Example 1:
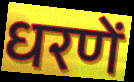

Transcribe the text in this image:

धरणें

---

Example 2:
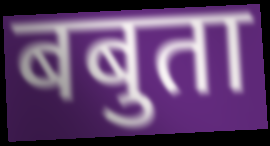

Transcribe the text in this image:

बबुता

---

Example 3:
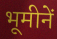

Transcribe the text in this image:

भूमीनें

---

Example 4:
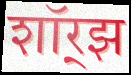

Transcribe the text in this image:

शॉर्झ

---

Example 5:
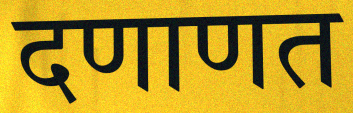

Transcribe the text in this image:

दणाणत